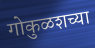
गोकुळशच्या